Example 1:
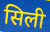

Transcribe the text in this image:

सिली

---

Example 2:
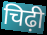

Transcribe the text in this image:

चिढ़ी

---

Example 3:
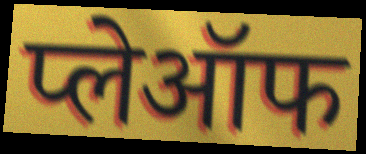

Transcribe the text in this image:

प्लेऑफ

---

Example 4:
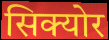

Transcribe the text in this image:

सिक्योर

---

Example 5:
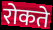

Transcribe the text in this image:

रोकते